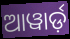
ଆୱାର୍ଡ଼